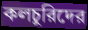
কলচুরিদের